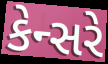
કેન્સરે